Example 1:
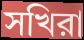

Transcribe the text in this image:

সখিরা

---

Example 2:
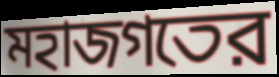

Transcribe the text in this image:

মহাজগতের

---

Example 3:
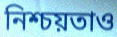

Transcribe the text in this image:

নিশ্চয়তাও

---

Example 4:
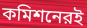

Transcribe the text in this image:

কমিশনেরই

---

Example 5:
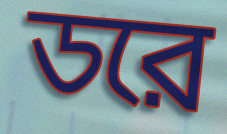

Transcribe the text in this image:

ডরে